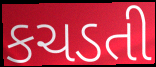
કચડતી